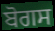
ਬੋਗਸ